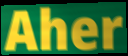
Aher